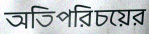
অতিপরিচয়ের